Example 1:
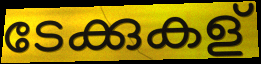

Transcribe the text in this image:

ടേക്കുകള്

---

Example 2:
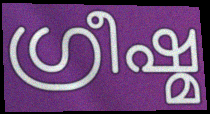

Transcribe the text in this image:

ഗ്രീഷ്മ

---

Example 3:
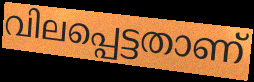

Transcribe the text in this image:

വിലപ്പെട്ടതാണ്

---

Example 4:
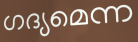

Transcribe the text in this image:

ഗദ്യമെന്ന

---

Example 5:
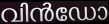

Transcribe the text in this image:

വിൻഡോ